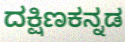
ದಕ್ಷಿಣಕನ್ನಡ